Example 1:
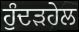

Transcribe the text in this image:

ਹੁੰਦੜਹੇਲ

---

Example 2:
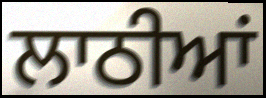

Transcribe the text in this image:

ਲਾਠੀਆਂ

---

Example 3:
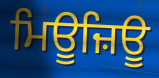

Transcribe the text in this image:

ਮਿਊਜ਼ਿਊ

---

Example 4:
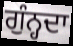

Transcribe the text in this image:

ਗੁੰਨ੍ਹਦਾ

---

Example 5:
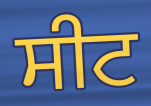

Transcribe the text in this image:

ਸੀਟ